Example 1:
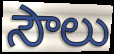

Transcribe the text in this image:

సౌలు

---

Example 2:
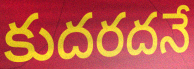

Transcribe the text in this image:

కుదరదనే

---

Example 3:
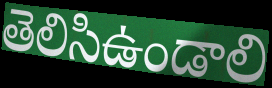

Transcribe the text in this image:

తెలిసిఉండాలి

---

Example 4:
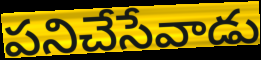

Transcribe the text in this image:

పనిచేసేవాడు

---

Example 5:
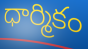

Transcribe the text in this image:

ధార్మికం